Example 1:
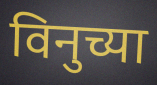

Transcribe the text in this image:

विनुच्या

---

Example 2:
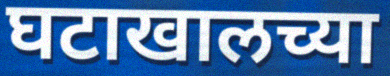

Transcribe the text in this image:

घटाखालच्या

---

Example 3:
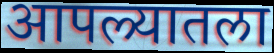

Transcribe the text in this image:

आपल्यातला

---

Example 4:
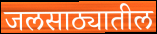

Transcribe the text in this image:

जलसाठ्यातील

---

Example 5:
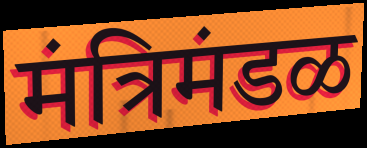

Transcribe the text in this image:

मंत्रिमंडळ